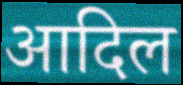
आदिल